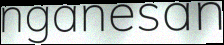
nganesan